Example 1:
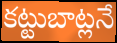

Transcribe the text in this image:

కట్టుబాట్లనే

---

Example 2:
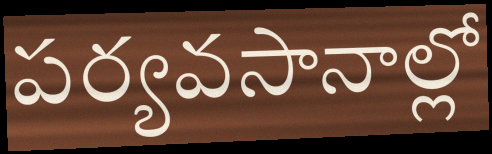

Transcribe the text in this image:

పర్యవసానాల్లో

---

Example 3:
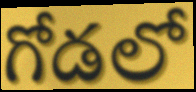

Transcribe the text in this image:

గోడలో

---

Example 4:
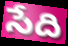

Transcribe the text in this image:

సేది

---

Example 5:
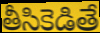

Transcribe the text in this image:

తీసికెడితే